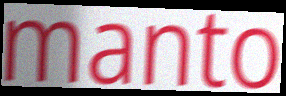
manto